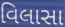
વિલાસા